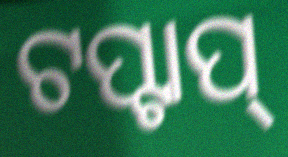
ଟପ୍ଟାପ୍